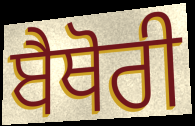
ਬੈਥੋਰੀ